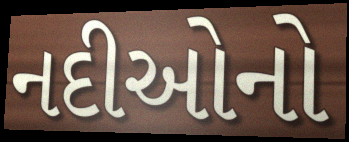
નદીઓનો